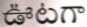
ఊటగా